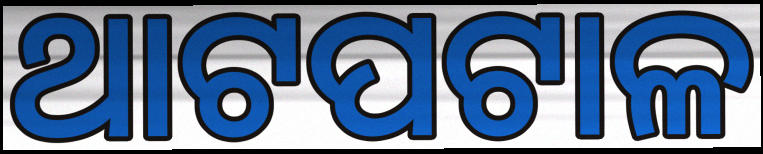
ଥାଟପଟାଳ